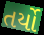
તર્યો